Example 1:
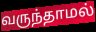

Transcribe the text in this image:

வருந்தாமல்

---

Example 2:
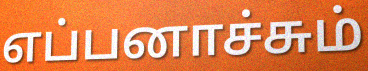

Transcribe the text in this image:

எப்பனாச்சும்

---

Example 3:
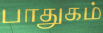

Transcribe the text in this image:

பாதுகம்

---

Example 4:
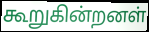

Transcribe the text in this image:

கூறுகின்றனள்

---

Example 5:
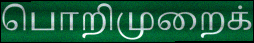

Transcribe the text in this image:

பொறிமுறைக்